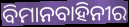
ବିମାନବାହିନୀର